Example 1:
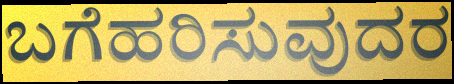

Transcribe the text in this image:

ಬಗೆಹರಿಸುವುದರ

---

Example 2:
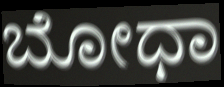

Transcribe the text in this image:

ಬೋಧಾ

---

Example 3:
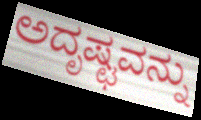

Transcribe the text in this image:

ಅದೃಷ್ಟವನ್ನು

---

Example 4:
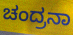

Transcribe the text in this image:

ಚಂದ್ರನಾ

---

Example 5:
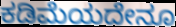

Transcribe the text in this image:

ಕಡಿಮೆಯದೇನೂ